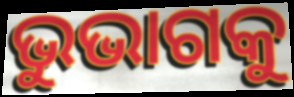
ଭୁଭାଗକୁ